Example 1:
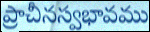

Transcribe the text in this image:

ప్రాచీనస్వభావము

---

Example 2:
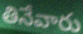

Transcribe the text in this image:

తినేవారు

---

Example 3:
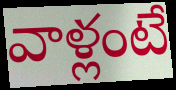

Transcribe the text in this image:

వాళ్లంటే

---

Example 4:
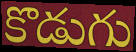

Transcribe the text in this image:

కొడుగు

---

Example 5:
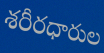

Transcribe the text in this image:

శరీరధారుల